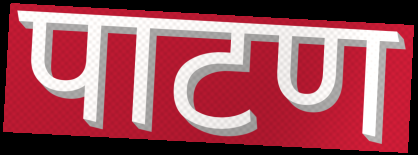
पाटण